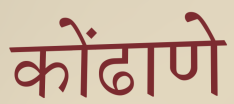
कोंढाणे